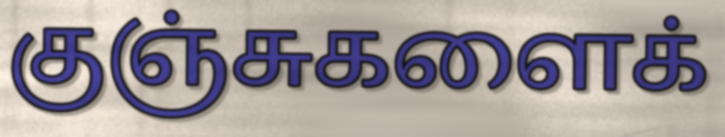
குஞ்சுகளைக்